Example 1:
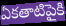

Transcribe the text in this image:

ఏకతాటిపైకి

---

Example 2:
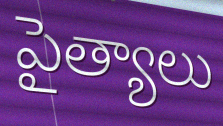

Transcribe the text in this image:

పైత్యాలు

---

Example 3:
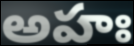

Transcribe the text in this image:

అహః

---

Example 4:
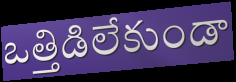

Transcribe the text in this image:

ఒత్తిడిలేకుండా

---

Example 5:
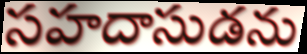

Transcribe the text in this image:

సహదాసుడను